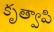
కృత్వాపి